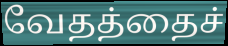
வேதத்தைச்